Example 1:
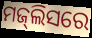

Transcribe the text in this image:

ମଜ୍‍ଲିସରେ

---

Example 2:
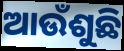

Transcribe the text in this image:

ଆଉଁଶୁଛି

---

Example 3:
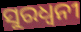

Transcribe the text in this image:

ସୁରଧ୍ୱନୀ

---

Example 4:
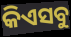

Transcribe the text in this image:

କିଏସବୁ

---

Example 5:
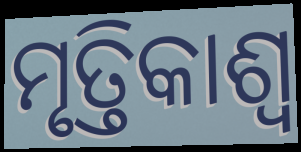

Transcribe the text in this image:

ମୃତ୍ତିକାଶ୍ୱ